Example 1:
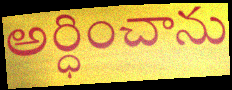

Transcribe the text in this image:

అర్ధించాను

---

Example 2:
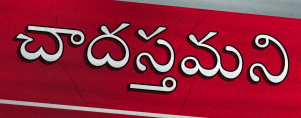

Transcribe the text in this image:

చాదస్తమని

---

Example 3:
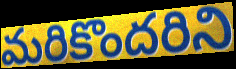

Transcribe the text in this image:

మరికొందరిని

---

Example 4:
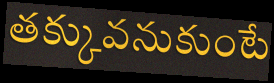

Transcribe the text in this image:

తక్కువనుకుంటే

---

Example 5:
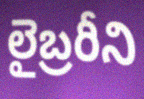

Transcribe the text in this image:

లైబ్రరీని